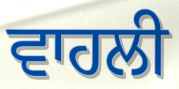
ਵਾਹਲੀ